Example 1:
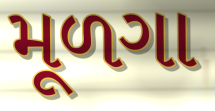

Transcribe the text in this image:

મૂળગા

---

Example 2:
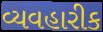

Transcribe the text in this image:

વ્યવહારીક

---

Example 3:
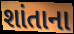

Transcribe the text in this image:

શાંતાના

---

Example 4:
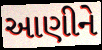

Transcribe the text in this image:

આણીને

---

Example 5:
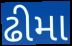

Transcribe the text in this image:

ઢીમા